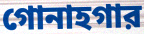
গোনাহগার